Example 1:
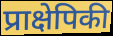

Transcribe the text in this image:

प्राक्षेपिकी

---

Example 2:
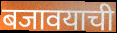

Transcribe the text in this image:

बजावयाची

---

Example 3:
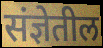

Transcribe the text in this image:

संज्ञेतील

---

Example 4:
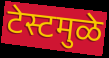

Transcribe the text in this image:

टेस्टमुळे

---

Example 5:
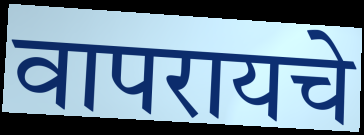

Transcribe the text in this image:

वापरायचे